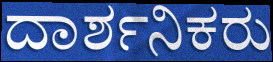
ದಾರ್ಶನಿಕರು